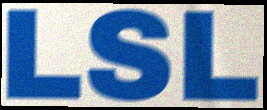
LSL